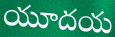
యూదయ